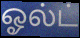
ஓல்ட்